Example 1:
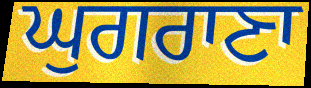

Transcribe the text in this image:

ਘੁਗਰਾਣਾ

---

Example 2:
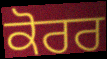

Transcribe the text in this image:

ਕੋਰਰ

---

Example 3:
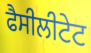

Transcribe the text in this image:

ਫੈਸੀਲੀਟੇਟ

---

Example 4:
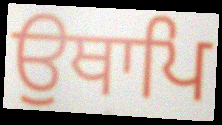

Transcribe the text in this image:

ਉਥਾਪਿ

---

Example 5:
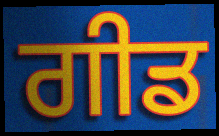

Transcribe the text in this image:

ਗੀਡ